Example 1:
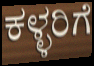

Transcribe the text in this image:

ಕಳ್ಳರಿಗೆ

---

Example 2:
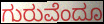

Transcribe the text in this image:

ಗುರುವೆಂದೂ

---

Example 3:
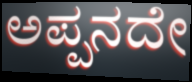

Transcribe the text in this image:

ಅಪ್ಪನದೇ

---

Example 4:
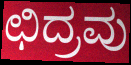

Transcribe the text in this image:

ಛಿದ್ರವು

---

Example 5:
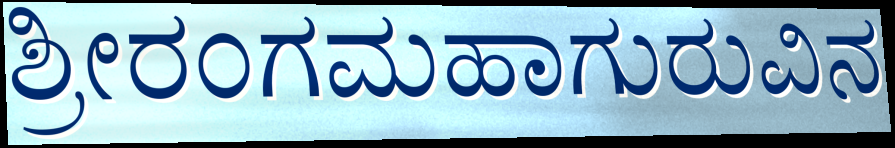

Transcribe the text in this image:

ಶ್ರೀರಂಗಮಹಾಗುರುವಿನ